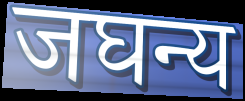
जघन्य